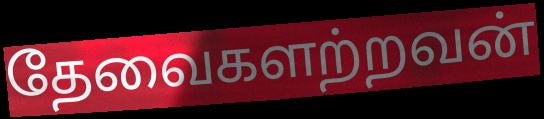
தேவைகளற்றவன்